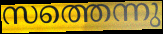
സത്തെന്നു